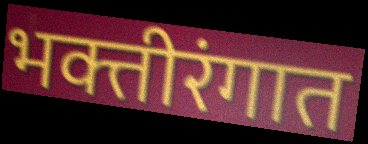
भक्तीरंगात